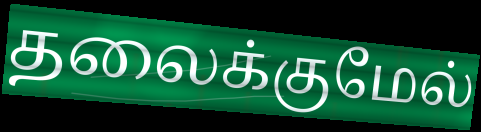
தலைக்குமேல்